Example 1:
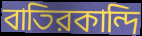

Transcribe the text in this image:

বাতিরকান্দি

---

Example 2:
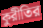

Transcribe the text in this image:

কুরীতির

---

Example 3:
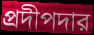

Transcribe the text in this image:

প্রদীপদার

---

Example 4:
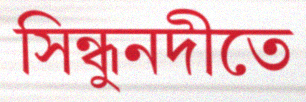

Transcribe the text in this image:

সিন্ধুনদীতে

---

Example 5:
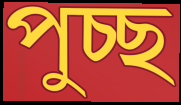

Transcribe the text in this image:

পুচ্ছ